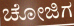
ಚೋಜಿಗ